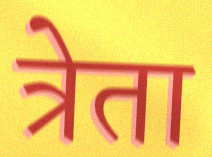
त्रेता